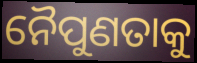
ନୈପୁଣତାକୁ